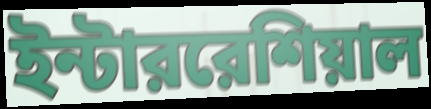
ইন্টাররেশিয়াল